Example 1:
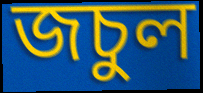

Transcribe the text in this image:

জচুল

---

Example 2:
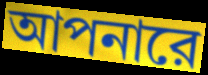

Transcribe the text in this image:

আপনারে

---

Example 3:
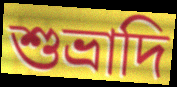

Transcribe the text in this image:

শুভ্রাদি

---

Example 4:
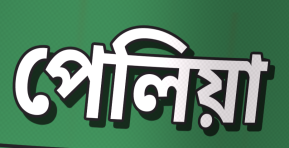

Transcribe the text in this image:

পেলিয়া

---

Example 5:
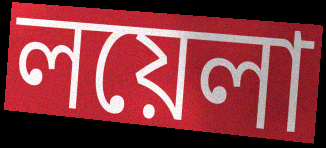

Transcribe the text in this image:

লয়েলা